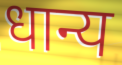
धान्य